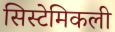
सिस्टेमिकली